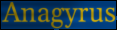
Anagyrus